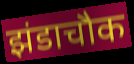
झंडाचौक